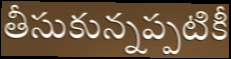
తీసుకున్నప్పటికీ